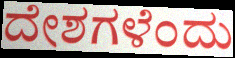
ದೇಶಗಳೆಂದು